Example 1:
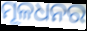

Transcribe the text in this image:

ମୂଳଧନର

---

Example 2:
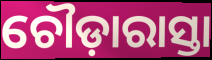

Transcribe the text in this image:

ଚୌଡ଼ାରାସ୍ତା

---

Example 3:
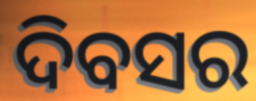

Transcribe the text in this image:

ଦିବସର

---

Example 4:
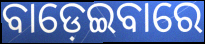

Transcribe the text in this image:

ବାଡ଼େଇବାରେ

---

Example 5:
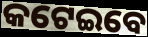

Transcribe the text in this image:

କଟେଇବେ